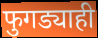
फुगड्याही